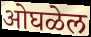
ओघळेल